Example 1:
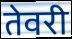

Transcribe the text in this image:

तेवरी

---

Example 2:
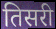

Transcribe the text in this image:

तिसरी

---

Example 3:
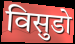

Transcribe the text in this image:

विसुडो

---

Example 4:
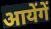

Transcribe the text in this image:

आयेंगें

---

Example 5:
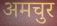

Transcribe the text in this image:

अमचुर